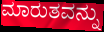
ಮಾರುತವನ್ನು